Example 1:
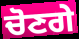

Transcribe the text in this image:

ਚੋਣਗੇ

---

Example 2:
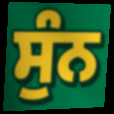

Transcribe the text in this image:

ਸੁੰਨ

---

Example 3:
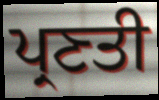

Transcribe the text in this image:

ਪ੍ਰਣਤੀ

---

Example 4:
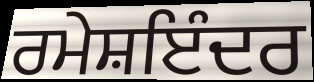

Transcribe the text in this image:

ਰਮੇਸ਼ਇੰਦਰ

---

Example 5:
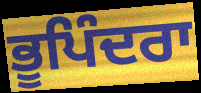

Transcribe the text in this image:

ਭੂਪਿੰਦਰਾ